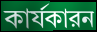
কার্যকারন